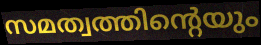
സമത്വത്തിന്റെയും